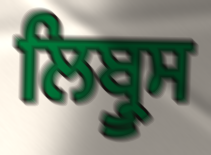
ਲਿਬ੍ਰੂਸ